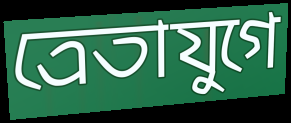
ত্রেতাযুগে